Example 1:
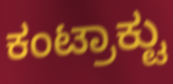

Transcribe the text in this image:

ಕಂಟ್ರಾಕ್ಟು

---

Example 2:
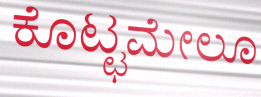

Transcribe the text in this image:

ಕೊಟ್ಟಮೇಲೂ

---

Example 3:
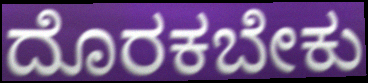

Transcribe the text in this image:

ದೊರಕಬೇಕು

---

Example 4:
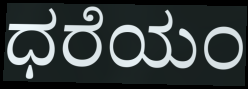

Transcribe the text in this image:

ಧರೆಯಂ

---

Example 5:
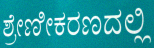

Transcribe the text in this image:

ಶ್ರೇಣೀಕರಣದಲ್ಲಿ